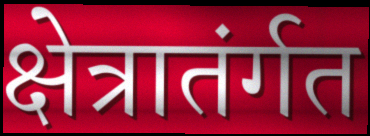
क्षेत्रातंर्गत